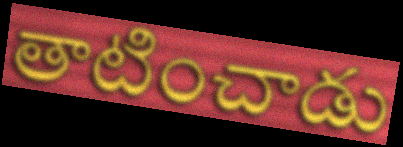
తాటించాడు